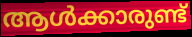
ആൾക്കാരുണ്ട്